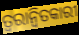
ତ୍ୱରାନ୍ୱିତକାରୀ